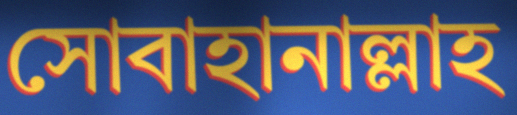
সোবাহানাল্লাহ